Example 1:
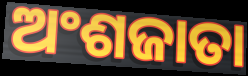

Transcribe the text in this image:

ଅଂଶଜାତା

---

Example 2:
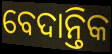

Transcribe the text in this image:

ବେଦାନ୍ତିକ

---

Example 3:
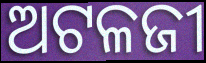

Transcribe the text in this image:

ଅଟଳଜୀ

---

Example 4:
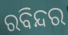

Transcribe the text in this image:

ରବିନ୍ଦର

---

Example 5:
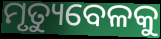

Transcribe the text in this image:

ମୃତ୍ୟୁବେଳକୁ